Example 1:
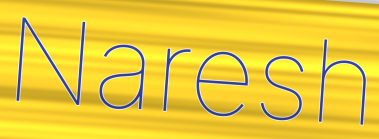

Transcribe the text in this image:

Naresh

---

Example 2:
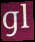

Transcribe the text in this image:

gl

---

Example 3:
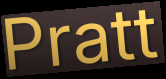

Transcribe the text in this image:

Pratt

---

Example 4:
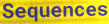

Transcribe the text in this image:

Sequences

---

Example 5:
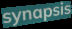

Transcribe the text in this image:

synapsis